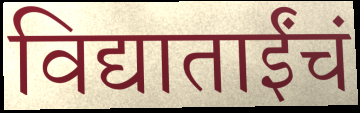
विद्याताईंचं